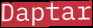
Daptar